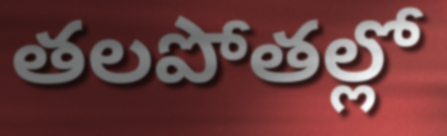
తలపోతల్లో